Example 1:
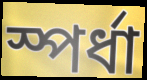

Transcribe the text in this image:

স্পর্ধা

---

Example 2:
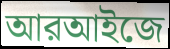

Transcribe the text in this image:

আরআইজে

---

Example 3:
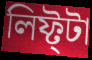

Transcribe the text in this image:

লিফ্ট্টা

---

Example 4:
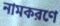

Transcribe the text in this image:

নামকরণে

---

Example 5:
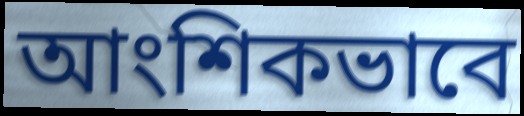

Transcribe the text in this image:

আংশিকভাবে